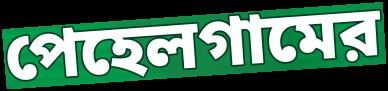
পেহেলগামের